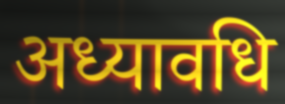
अध्यावधि